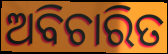
ଅବିଚାରିତ